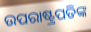
ଉପରାଷ୍ଟ୍ରପତିଙ୍କ